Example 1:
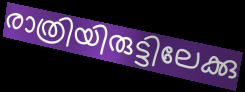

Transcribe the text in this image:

രാത്രിയിരുട്ടിലേക്കു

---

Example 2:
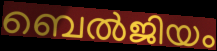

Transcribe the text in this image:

ബെൽജിയം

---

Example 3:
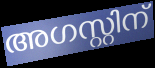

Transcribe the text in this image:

അഗസ്റ്റിന്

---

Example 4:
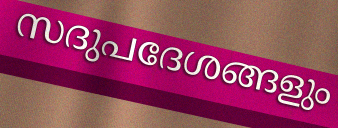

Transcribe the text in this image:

സദുപദേശങ്ങളും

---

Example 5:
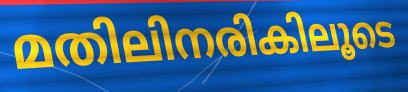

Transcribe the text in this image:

മതിലിനരികിലൂടെ